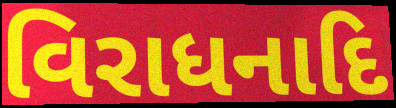
વિરાધનાદિ